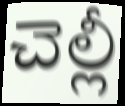
చెల్లీ